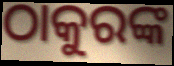
ଠାକୁରଙ୍କ